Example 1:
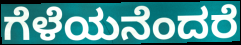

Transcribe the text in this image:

ಗೆಳೆಯನೆಂದರೆ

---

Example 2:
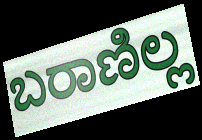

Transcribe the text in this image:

ಬರಾಣಿಲ್ಲ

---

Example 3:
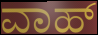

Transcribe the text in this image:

ವಾಹ್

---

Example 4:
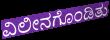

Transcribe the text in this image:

ವಿಲೀನಗೊಂಡಿತು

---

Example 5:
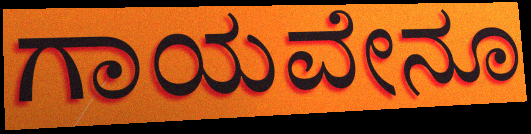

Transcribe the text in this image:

ಗಾಯವೇನೂ